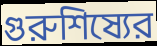
গুরুশিষ্যের